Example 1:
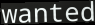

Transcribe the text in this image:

wanted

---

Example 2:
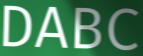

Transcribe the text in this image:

DABC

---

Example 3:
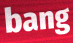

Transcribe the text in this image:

bang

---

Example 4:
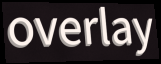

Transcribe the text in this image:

overlay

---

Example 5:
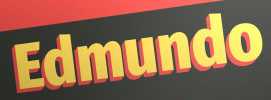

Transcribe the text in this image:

Edmundo